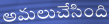
అమలుచేసింది